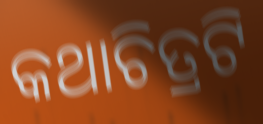
କଥାଚିତ୍ରଟି